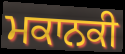
ਮਕਾਨਕੀ